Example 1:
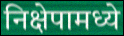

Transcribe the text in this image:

निक्षेपामध्ये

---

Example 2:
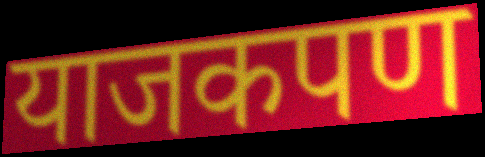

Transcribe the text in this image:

याजकपण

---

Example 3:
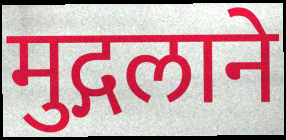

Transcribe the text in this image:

मुद्गलाने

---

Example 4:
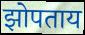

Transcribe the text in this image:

झोपताय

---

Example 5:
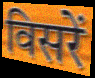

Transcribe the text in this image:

विसरें